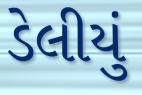
ડેલીયું